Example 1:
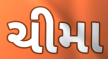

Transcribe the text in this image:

ચીમા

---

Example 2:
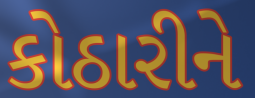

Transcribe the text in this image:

કોઠારીને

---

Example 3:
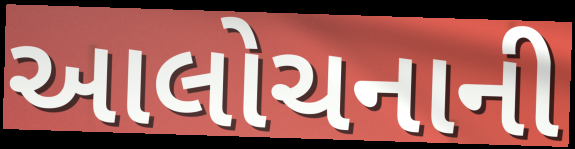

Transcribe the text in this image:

આલોચનાની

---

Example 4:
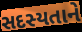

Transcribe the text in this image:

સદસ્યતાને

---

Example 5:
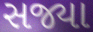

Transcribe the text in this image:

સજ્યા